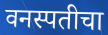
वनस्पतीचा